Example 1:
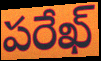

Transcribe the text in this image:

పరేఖ్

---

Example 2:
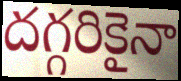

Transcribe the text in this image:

దగ్గరికైనా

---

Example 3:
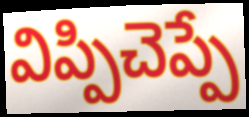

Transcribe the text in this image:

విప్పిచెప్పే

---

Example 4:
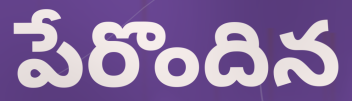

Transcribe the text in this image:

పేరొందిన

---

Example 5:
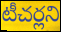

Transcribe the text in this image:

టీచర్లని